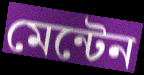
মেন্টেন